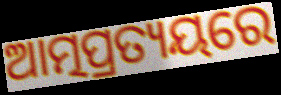
ଆତ୍ମପ୍ରତ୍ୟୟରେ